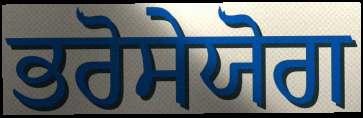
ਭਰੋਸੇਯੋਗ